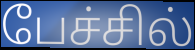
பேச்சில்